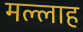
मल्लाह